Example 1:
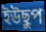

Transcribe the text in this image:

ইউছুপ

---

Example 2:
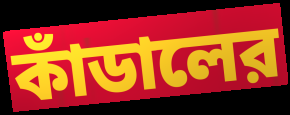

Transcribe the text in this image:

কাঁডালের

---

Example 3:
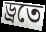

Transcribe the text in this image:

ড্রতে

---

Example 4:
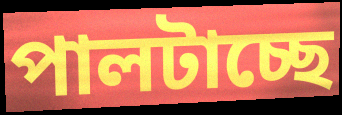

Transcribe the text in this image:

পালটাচ্ছে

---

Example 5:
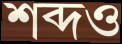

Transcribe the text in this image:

শব্দও